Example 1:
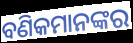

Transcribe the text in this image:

ବଣିକମାନଙ୍କର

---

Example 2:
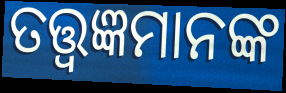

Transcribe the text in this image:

ତତ୍ତ୍ୱଜ୍ଞମାନଙ୍କ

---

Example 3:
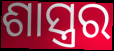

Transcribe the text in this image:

ଶାସ୍ତ୍ରର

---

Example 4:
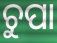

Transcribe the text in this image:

ଚୁପା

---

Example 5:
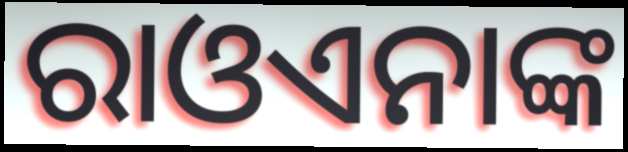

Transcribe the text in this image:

ରାଓଏନାଙ୍କ